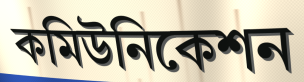
কমিউনিকেশন